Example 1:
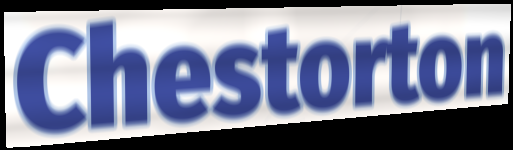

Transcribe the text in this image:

Chestorton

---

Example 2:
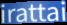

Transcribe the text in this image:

irattai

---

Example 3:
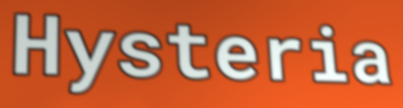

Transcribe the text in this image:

Hysteria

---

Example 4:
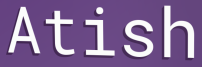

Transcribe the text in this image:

Atish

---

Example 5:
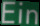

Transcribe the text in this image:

Ein